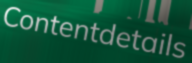
Contentdetails